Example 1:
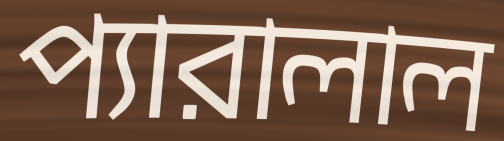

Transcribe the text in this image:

প্যারালাল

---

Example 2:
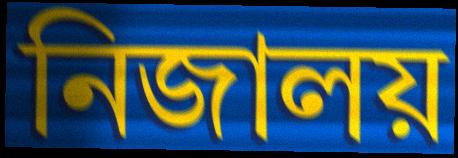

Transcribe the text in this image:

নিজালয়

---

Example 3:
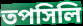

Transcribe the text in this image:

তপসিলি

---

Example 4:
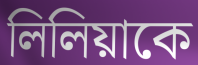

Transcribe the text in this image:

লিলিয়াকে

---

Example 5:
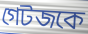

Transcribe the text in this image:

গেটজকে